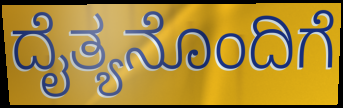
ದೈತ್ಯನೊಂದಿಗೆ